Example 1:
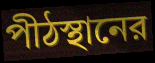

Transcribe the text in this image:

পীঠস্থানের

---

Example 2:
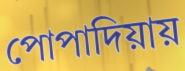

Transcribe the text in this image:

পোপাদিয়ায়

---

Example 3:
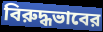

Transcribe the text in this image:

বিরুদ্ধভাবের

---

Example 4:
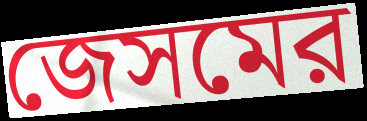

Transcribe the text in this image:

জেসমের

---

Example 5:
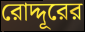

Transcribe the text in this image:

রোদ্দূরের